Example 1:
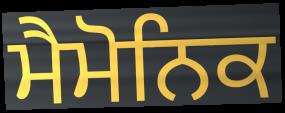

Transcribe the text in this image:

ਮੈਮੋਨਿਕ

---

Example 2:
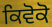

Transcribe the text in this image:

ਕਿਵੋਕੋ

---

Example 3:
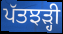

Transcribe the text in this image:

ਪੱਤਝੜ੍ਹੀ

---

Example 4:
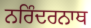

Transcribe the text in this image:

ਨਰਿੰਦਰਨਾਥ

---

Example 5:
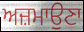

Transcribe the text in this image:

ਅਜ਼ਮਾਉਣਾ